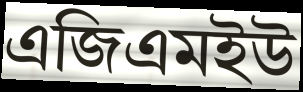
এজিএমইউ